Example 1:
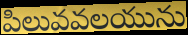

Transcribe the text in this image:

పిలువవలయును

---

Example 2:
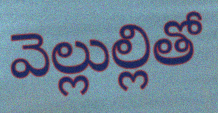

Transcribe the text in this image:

వెల్లుల్లితో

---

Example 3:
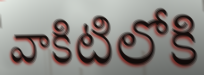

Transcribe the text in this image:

వాకిటిలోకి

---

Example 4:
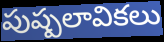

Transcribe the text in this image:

పుష్పలావికలు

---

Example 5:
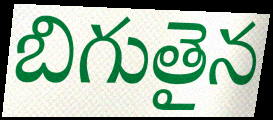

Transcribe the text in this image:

బిగుతైన